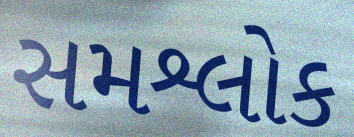
સમશ્લોક